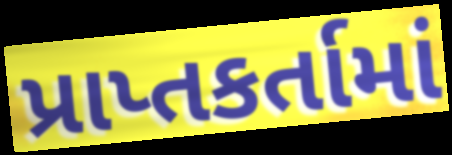
પ્રાપ્તકર્તામાં